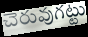
చెరువుగట్టు